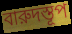
বারুদস্তূপ